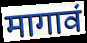
मागावं